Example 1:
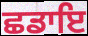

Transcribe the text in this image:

ਛਡਾਇ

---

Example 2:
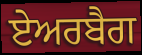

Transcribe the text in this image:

ਏਅਰਬੈਗ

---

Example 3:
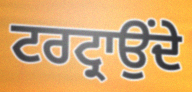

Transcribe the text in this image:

ਟਰਟ੍ਰਾਉਂਦੇ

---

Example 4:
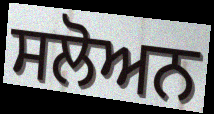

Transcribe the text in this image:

ਸਲੋਅਨ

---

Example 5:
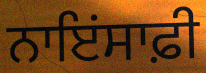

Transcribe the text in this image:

ਨਾਇਂਸਾਫ਼ੀ